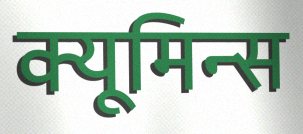
क्यूमिन्स